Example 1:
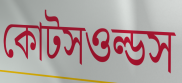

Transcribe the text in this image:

কোটসওল্ডস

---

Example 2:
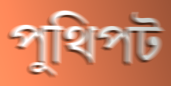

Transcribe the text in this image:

পুথিপট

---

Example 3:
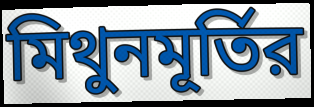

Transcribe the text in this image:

মিথুনমূর্তির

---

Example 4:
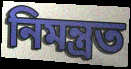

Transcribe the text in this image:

নিমন্ত্রত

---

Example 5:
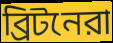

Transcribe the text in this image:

ব্রিটনেরা